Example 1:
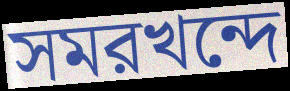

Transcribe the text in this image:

সমরখন্দে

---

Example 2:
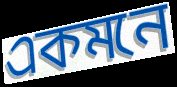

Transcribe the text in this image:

একমনে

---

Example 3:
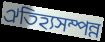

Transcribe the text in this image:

ঐতিহ্যসম্পন্ন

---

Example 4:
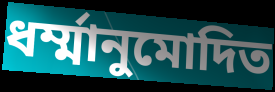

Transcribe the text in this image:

ধর্ম্মানুমোদিত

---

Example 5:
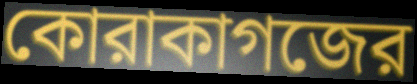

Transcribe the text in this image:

কোরাকাগজের